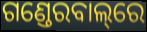
ଗଣ୍ଡେରବାଲ୍‌ରେ